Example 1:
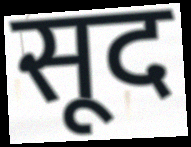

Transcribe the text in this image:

सूद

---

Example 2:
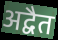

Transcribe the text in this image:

अद्वैत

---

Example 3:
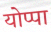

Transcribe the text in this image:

योप्पा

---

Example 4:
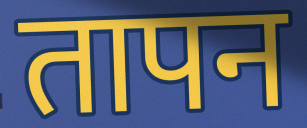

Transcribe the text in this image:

तापन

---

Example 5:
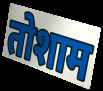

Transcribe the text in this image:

तोशाम